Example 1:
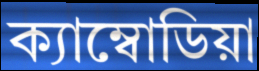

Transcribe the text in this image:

ক্যাম্বোডিয়া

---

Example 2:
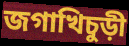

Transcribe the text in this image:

জগাখিচুড়ী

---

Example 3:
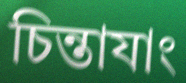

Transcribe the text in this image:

চিন্তাযাং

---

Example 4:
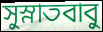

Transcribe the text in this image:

সুস্নাতবাবু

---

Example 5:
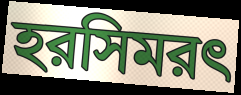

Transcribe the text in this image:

হরসিমরৎ